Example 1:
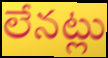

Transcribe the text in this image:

లేనట్లు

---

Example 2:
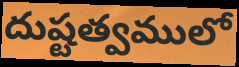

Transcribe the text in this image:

దుష్టత్వములో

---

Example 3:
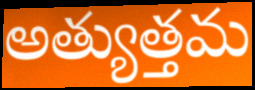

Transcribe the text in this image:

అత్యుత్తమ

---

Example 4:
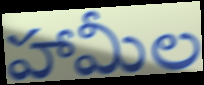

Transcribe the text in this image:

హామీల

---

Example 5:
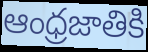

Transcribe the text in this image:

ఆంధ్రజాతికి